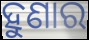
ହୁଣାର